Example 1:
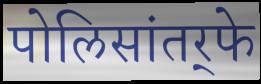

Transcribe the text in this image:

पोलिसांतर्फे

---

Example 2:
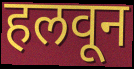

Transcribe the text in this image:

हलवून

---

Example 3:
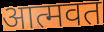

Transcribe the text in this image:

आत्मवत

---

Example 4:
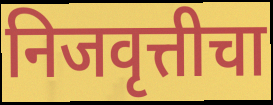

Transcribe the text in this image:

निजवृत्तीचा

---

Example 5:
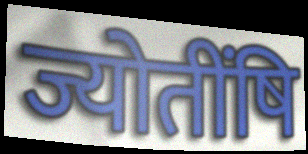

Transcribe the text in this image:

ज्योतींषि